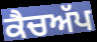
ਕੈਚਅੱਪ